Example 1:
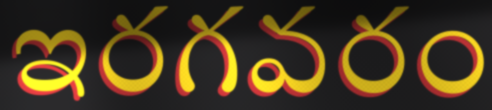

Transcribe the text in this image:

ఇరగవరం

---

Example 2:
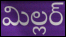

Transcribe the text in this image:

మిల్లర్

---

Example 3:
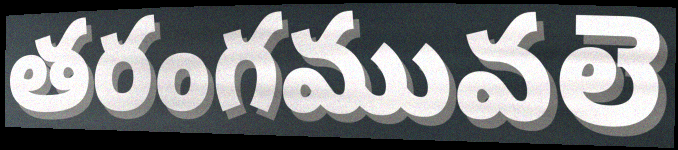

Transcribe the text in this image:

తరంగమువలె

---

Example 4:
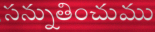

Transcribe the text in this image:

సన్నుతించుము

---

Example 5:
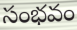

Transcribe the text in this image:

సంభవం